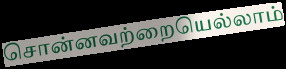
சொன்னவற்றையெல்லாம்